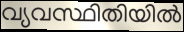
വ്യവസ്ഥിതിയിൽ